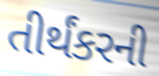
તીર્થંકરની